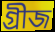
গ্ৰীজ